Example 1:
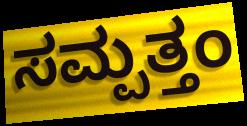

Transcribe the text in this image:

ಸಮ್ಪತ್ತಂ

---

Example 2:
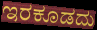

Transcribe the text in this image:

ಇರಕೂಡದು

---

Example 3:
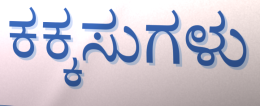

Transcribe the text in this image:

ಕಕ್ಕಸುಗಳು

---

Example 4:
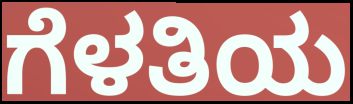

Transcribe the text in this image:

ಗೆಳತಿಯ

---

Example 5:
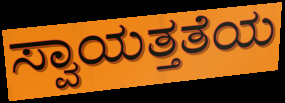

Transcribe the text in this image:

ಸ್ವಾಯತ್ತತೆಯ